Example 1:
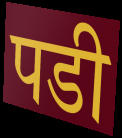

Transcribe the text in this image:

पडी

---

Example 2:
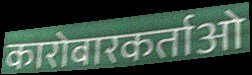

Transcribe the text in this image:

कारोबारकर्ताओ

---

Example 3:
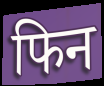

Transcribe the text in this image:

फिन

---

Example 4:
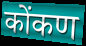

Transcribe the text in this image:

कोंकण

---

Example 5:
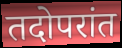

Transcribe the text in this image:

तदोपरांत